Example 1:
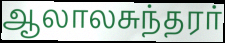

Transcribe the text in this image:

ஆலாலசுந்தரர்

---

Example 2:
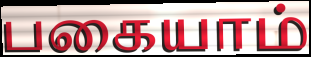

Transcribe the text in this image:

பகையாம்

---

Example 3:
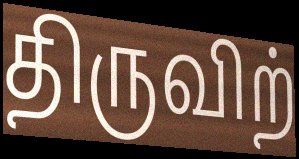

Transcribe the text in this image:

திருவிற்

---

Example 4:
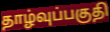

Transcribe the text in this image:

தாழ்வுப்பகுதி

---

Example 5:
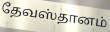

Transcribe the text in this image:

தேவஸ்தானம்